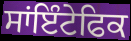
ਸਾਂਇੰਟੇਫਿਕ